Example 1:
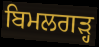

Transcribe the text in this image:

ਬਿਮਲਗੜ੍ਹ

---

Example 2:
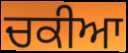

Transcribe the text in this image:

ਚਕੀਆ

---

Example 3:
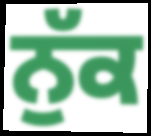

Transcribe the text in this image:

ਨੁੱਕ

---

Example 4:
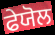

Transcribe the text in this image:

ਫੇਯੋਲ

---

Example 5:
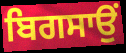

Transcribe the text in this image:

ਬਿਗਸਾਉਂ